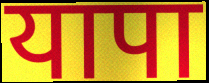
यापा